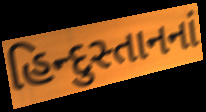
હિન્દુસ્તાનનાં